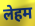
लेहम